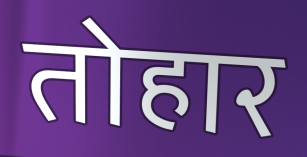
तोहार